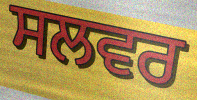
ਸਲਵਰ